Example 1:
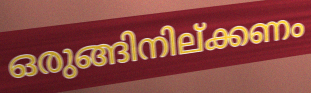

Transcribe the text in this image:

ഒരുങ്ങിനില്ക്കണം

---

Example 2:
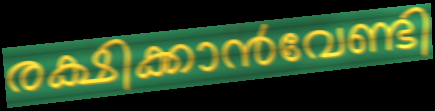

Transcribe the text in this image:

രക്ഷിക്കാൻവേണ്ടി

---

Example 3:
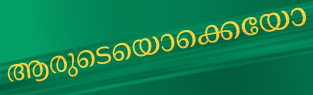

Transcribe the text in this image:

ആരുടെയൊക്കെയോ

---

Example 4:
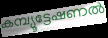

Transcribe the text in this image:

കമ്പ്യൂട്ടേഷണൽ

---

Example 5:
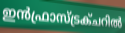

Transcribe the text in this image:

ഇൻഫ്രാസ്ട്രക്ചറിൽ